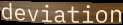
deviation